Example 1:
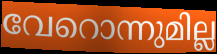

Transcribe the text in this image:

വേറൊന്നുമില്ല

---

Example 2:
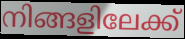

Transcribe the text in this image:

നിങ്ങളിലേക്ക്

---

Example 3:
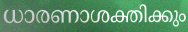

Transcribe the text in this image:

ധാരണാശക്തിക്കും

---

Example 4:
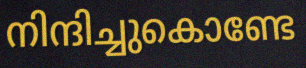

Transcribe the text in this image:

നിന്ദിച്ചുകൊണ്ടേ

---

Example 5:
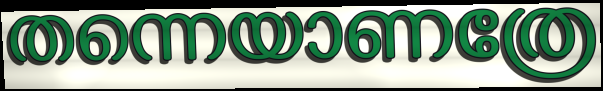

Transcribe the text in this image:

തന്നെയാണത്രേ